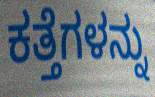
ಕತ್ತೆಗಳನ್ನು